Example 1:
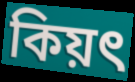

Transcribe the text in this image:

কিয়ৎ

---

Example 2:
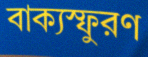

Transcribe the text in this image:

বাক্যস্ফুরণ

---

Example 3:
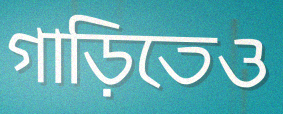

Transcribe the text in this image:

গাড়িতেও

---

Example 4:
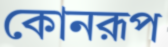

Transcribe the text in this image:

কোনরূপ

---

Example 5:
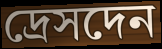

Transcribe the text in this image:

দ্রেসদেন